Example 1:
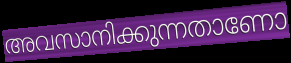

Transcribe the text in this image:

അവസാനിക്കുന്നതാണോ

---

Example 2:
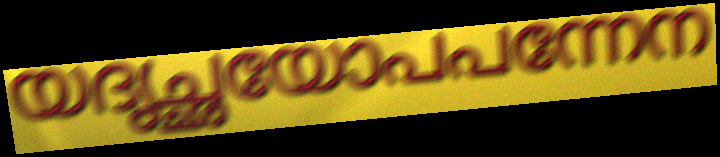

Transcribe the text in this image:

യദൃച്ഛയോപപന്നേന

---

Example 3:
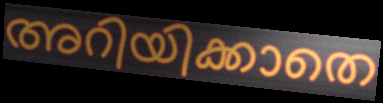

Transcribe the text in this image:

അറിയിക്കാതെ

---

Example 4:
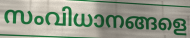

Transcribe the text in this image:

സംവിധാനങ്ങളെ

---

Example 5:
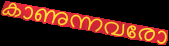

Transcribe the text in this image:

കാണുന്നവരോ